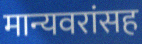
मान्यवरांसह